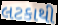
લટકાથી